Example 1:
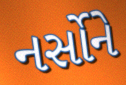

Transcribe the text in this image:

નર્સોને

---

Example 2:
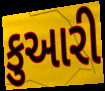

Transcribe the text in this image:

કુઆરી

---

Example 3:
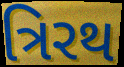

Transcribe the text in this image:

ત્રિરથ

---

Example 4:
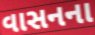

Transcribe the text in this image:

વાસનના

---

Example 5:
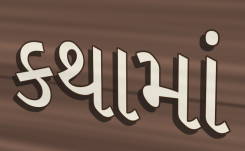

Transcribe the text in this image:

કથામાં